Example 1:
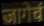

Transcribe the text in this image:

जागेचं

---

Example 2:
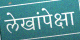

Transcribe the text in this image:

लेखांपेक्षा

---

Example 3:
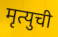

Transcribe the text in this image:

मृत्युची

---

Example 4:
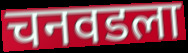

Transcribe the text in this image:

चनवडला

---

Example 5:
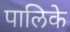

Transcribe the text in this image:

पालिके